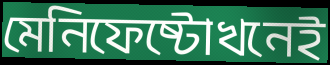
মেনিফেষ্টোখনেই